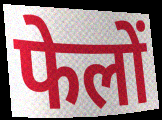
फेलों